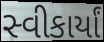
સ્વીકાર્યાં